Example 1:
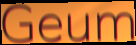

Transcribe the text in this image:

Geum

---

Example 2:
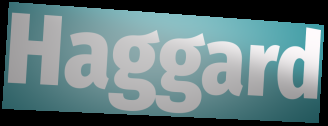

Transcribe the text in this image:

Haggard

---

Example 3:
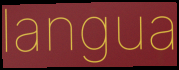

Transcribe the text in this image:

langua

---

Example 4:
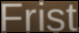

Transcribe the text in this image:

Frist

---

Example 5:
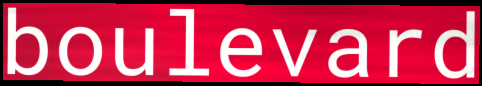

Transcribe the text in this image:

boulevard